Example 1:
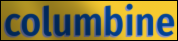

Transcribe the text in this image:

columbine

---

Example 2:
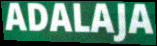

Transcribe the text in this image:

ADALAJA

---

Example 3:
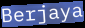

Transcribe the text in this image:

Berjaya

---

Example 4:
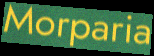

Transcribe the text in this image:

Morparia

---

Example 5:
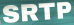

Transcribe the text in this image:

SRTP